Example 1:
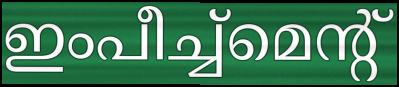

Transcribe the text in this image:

ഇംപീച്ച്മെന്റ്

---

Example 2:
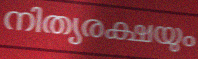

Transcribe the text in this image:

നിത്യരക്ഷയും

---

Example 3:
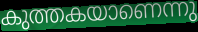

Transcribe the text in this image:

കുത്തകയാണെന്നു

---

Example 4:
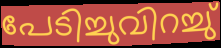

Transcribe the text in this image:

പേടിച്ചുവിറച്ചു്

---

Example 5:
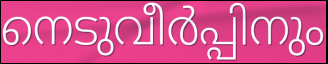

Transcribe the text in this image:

നെടുവീർപ്പിനും